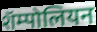
शॅम्पोलियन